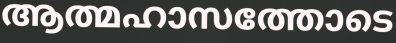
ആത്മഹാസത്തോടെ